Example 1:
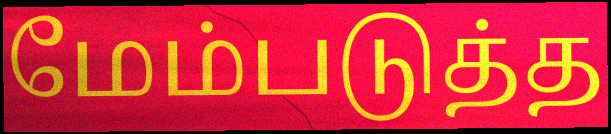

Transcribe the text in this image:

மேம்படுத்த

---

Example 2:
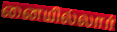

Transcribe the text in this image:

னையில்லார்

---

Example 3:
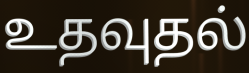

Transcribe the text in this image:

உதவுதல்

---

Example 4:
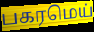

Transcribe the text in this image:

பகரமெய்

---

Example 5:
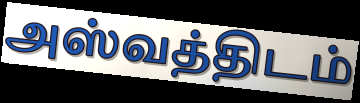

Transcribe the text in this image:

அஸ்வத்திடம்